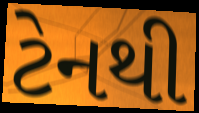
ટેનથી